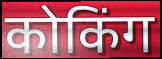
कोकिंग